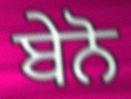
ਬੇਨੋ